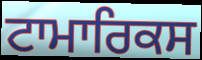
ਟਾਮਾਰਿਕਸ